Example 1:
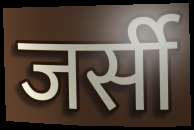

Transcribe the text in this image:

जर्सी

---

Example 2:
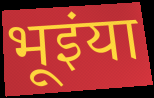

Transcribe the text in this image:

भूइंया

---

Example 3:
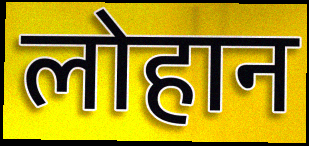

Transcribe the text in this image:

लोहान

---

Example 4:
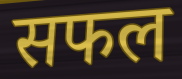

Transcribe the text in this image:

सफल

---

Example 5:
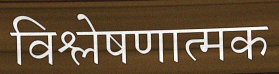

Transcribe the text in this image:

विश्लेषणात्मक